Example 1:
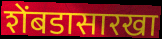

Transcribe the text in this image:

शेंबडासारखा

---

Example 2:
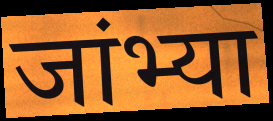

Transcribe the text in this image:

जांभ्या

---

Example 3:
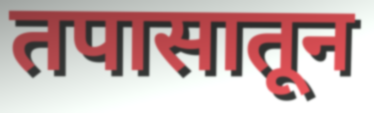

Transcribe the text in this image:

तपासातून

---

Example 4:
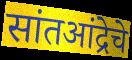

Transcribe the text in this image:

सांतआंद्रेचे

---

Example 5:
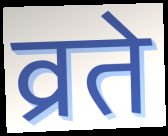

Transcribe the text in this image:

व्रते